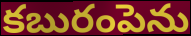
కబురంపెను